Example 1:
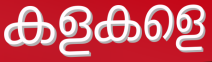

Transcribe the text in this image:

കളകളെ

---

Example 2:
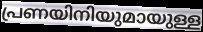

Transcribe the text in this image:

പ്രണയിനിയുമായുള്ള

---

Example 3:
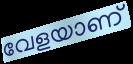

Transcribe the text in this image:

വേളയാണ്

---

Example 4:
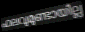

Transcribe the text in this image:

ഫലവുമുണ്ടായില്ല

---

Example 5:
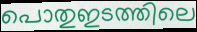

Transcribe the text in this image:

പൊതുഇടത്തിലെ